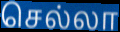
செல்லா